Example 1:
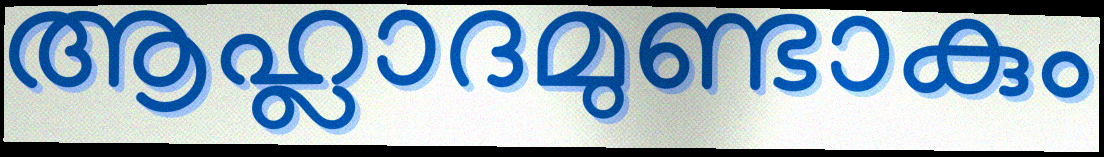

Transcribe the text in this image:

ആഹ്ലാദമുണ്ടാകും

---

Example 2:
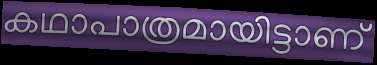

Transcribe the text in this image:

കഥാപാത്രമായിട്ടാണ്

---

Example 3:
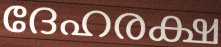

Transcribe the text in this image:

ദേഹരക്ഷ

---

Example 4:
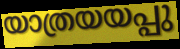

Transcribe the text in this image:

യാത്രയയപ്പു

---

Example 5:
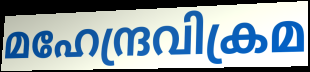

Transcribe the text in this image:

മഹേന്ദ്രവിക്രമ